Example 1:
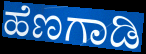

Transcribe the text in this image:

ಹೆಣಗಾಡಿ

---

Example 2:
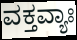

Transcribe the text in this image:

ವಕ್ತವ್ಯಾಃ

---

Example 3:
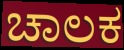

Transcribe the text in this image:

ಚಾಲಕ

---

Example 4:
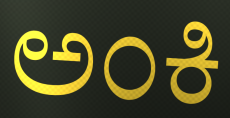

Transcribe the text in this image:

ಅಂಕಿ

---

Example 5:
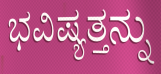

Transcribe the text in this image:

ಭವಿಷ್ಯತ್ತನ್ನು